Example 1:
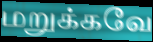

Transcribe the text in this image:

மறுக்கவே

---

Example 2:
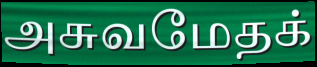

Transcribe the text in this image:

அசுவமேதக்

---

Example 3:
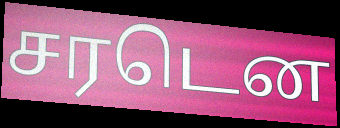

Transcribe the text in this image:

சரடென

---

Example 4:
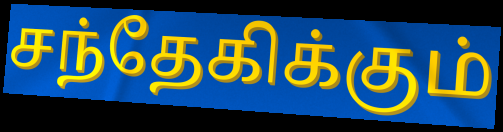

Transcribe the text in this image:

சந்தேகிக்கும்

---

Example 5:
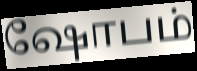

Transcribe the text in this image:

ஷோபம்